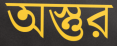
অস্তুর